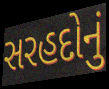
સરહદોનું